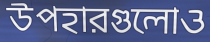
উপহারগুলোও